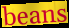
beans